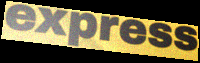
express